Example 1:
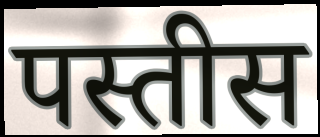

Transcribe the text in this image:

पस्तीस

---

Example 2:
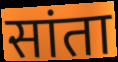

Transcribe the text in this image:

सांता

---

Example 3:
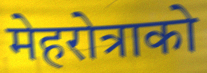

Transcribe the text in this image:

मेहरोत्राको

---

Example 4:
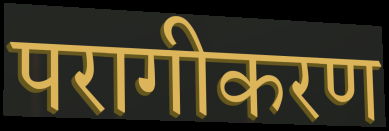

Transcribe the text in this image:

परागीकरण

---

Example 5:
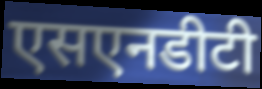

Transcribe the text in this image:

एसएनडीटी